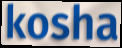
kosha